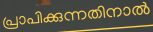
പ്രാപിക്കുന്നതിനാൽ